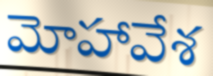
మోహావేశ